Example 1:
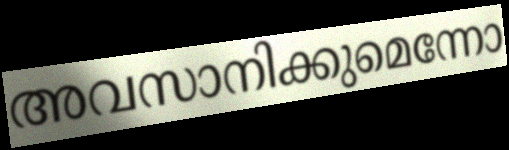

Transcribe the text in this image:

അവസാനിക്കുമെന്നോ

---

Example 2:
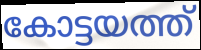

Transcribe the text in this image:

കോട്ടയത്ത്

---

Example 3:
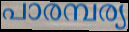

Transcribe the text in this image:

പാരമ്പര്യ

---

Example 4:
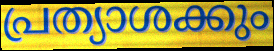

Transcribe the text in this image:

പ്രത്യാശക്കും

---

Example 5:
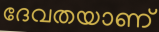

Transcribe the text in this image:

ദേവതയാണ്